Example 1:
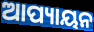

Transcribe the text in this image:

ଆପ୍ୟାୟନ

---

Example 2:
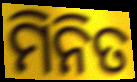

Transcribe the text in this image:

ମିନିତ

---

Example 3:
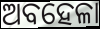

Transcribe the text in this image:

ଅବହେଳା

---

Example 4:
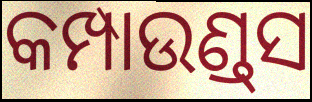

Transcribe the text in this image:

କମ୍ପାଉଣ୍ଡ୍‌ସ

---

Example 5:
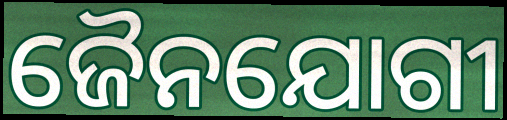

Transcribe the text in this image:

ଜୈନଯୋଗୀ